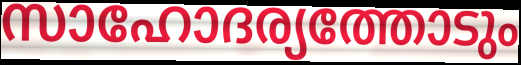
സാഹോദര്യത്തോടും